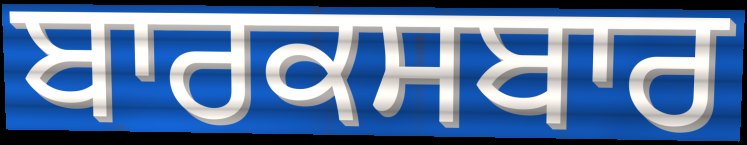
ਬਾਰਕਸਬਾਰ